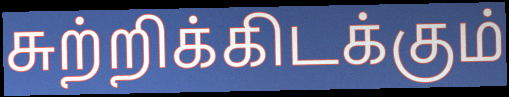
சுற்றிக்கிடக்கும்